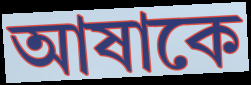
আষাকে